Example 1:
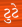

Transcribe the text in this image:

ટુટે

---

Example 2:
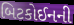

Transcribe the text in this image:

બિટકોઈનની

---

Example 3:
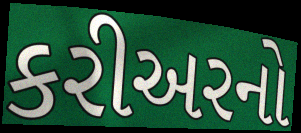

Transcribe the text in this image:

કરીઅરનો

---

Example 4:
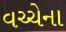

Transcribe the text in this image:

વચ્ચેના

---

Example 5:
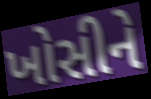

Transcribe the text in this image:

ખોસીને